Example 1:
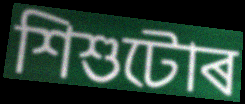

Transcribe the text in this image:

শিশুটোৰ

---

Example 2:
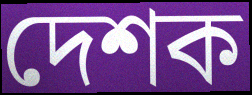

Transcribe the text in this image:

দেশক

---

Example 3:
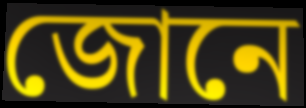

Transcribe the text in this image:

জোনে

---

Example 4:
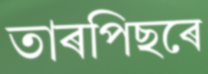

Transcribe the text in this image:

তাৰপিছৰে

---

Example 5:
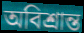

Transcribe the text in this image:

অবিশ্ৰান্ত